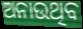
ଅନାଉଥିବ